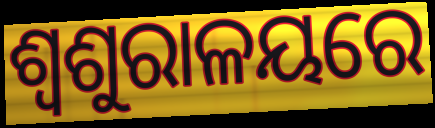
ଶ୍ୱଶୁରାଳୟରେ